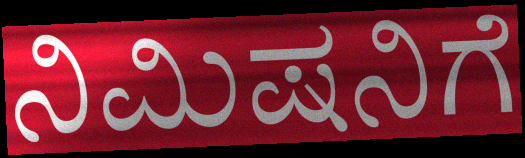
ನಿಮಿಷನಿಗೆ